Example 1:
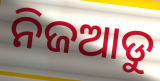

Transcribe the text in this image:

ନିଜଆଡୁ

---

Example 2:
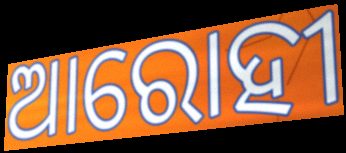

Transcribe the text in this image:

ଆରୋହୀ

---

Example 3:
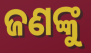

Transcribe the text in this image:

ଜଣଙ୍କୁ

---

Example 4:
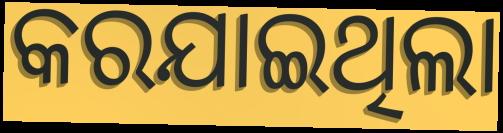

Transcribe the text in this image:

କରଯାଇଥିଲା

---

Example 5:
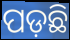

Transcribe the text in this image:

ପଡ଼ଛି